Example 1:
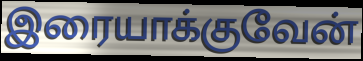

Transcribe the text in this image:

இரையாக்குவேன்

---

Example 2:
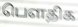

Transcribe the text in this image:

பௌதிக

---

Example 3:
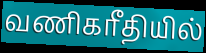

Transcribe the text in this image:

வணிகரீதியில்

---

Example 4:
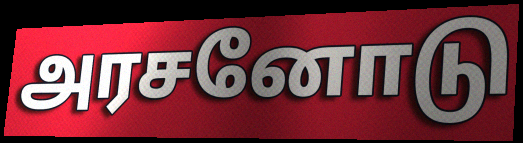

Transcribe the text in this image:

அரசனோடு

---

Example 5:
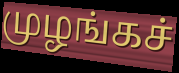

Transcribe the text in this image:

முழங்கச்